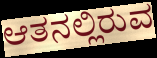
ಆತನಲ್ಲಿರುವ